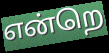
என்றெ